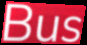
Bus